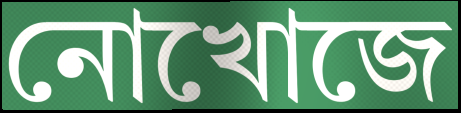
নোখোজে